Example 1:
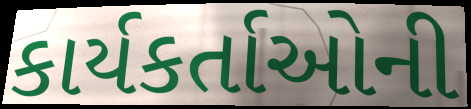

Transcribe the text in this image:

કાર્યકર્તાઓની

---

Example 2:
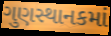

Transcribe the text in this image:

ગુણસ્થાનકમાં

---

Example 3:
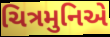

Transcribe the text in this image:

ચિત્રમુનિએ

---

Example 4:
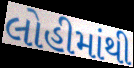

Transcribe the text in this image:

લોહીમાંથી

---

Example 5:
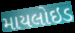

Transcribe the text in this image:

માયલોઇડ